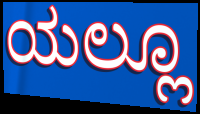
ಯಲ್ಲೂ